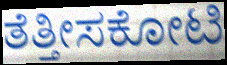
ತೆತ್ತೀಸಕೋಟಿ